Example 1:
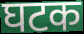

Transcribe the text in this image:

घटक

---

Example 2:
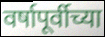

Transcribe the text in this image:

वर्षापूर्वीच्या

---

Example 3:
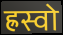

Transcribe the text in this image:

ह्रस्वो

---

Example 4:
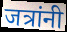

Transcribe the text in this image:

जत्रांनी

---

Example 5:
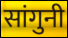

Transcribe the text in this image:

सांगुनी